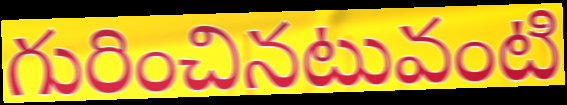
గురించినటువంటి